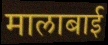
मालाबाई